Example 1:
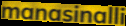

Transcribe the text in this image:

manasinalli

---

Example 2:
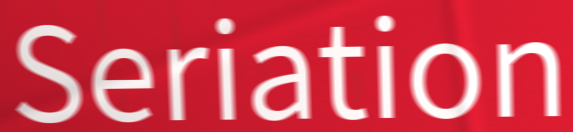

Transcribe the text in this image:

Seriation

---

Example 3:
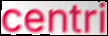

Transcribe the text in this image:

centri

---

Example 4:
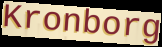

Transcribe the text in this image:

Kronborg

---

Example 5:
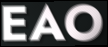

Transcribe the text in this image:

EAO